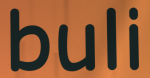
buli